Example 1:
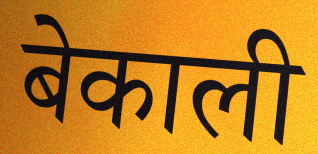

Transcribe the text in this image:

बेकाली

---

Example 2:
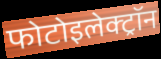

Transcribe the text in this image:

फोटोइलेक्ट्रॉन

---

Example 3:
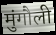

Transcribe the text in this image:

मुंगौली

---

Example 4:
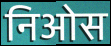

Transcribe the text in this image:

निओस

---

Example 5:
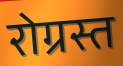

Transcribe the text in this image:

रोग्रस्त